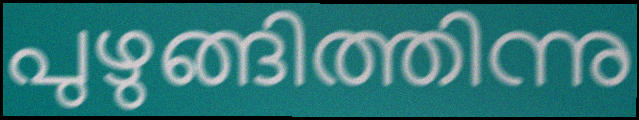
പുഴുങ്ങിത്തിന്നു